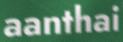
aanthai